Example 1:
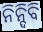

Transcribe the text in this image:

ନିନ୍ଦିବି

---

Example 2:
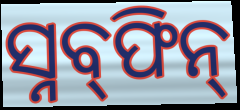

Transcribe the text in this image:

ସ୍ନବ୍‍ଫିନ୍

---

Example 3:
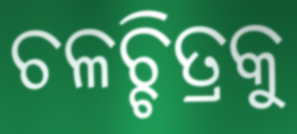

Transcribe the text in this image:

ଚଳଚ୍ଚିତ୍ରକୁ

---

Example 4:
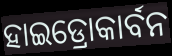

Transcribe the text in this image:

ହାଇଡ୍ରୋକାର୍ବନ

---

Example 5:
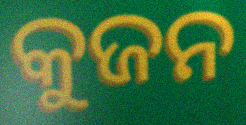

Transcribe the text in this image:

କୁଜନ